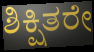
ಶಿಕ್ಷಿತರೇ